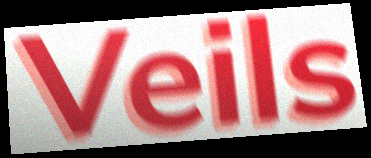
Veils